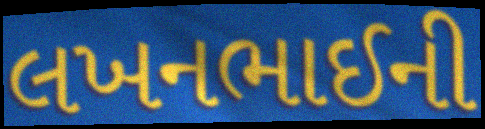
લખનભાઈની